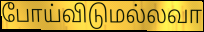
போய்விடுமல்லவா